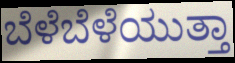
ಬೆಳೆಬೆಳೆಯುತ್ತಾ